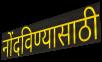
नोंदविण्यासाठी